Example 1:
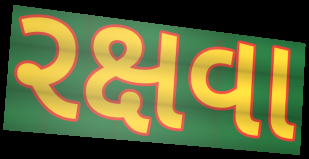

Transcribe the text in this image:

રક્ષવા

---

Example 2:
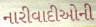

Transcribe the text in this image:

નારીવાદીઓની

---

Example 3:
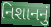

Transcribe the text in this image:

નિશાનનું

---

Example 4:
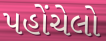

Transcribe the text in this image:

પહોંચેલો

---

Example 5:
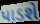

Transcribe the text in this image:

પાડશે